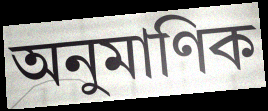
অনুমাণিক